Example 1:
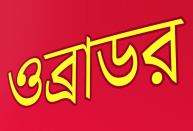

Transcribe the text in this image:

ওব্রাডর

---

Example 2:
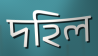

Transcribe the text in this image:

দহিল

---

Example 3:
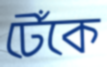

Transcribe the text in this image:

টেঁকে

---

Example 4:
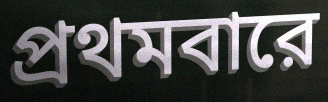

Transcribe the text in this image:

প্রথমবারে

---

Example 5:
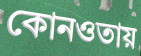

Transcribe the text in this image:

কোনওতায়